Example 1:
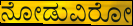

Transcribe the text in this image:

ನೋಡುವಿರೋ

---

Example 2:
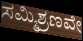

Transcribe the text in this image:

ಸಮ್ಮಿಶ್ರಣವೇ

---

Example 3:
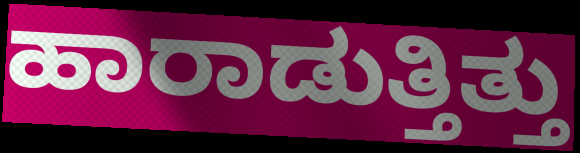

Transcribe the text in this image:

ಹಾರಾಡುತ್ತಿತ್ತು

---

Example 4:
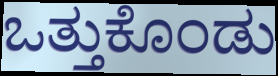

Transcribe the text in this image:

ಒತ್ತುಕೊಂಡು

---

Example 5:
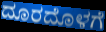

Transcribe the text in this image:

ದೂರದೊಳಗೆ